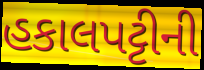
હકાલપટ્ટીની